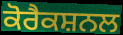
ਕੋਰੈਕਸ਼ਨਲ